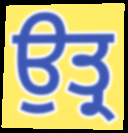
ਉਤ੍ਰ